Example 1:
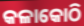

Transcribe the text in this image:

କଳାକୋଠି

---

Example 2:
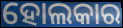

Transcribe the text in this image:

ହୋଲକାର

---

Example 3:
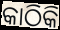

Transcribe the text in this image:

କାଠିକି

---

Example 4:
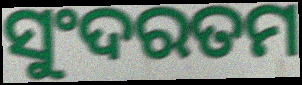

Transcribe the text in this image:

ସୁଂଦରତମ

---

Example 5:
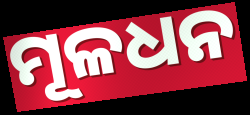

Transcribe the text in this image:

ମୂଳଧନ